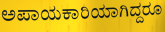
ಅಪಾಯಕಾರಿಯಾಗಿದ್ದರೂ